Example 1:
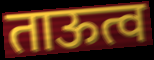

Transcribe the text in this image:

ताऊत्व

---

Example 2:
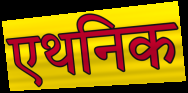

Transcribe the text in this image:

एथनिक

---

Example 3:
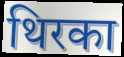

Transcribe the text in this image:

थिरका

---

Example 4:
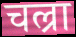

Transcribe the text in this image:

चल्रा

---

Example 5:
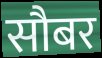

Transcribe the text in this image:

सौबर